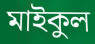
মাইকুল